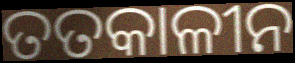
ତତକାଳୀନ